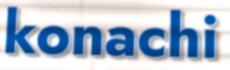
konachi